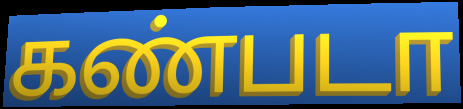
கண்படா